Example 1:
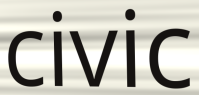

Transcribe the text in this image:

civic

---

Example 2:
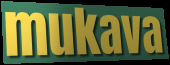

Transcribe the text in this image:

mukava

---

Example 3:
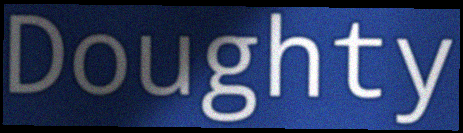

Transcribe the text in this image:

Doughty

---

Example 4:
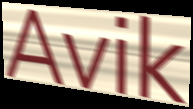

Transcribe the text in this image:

Avik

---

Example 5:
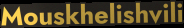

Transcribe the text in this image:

Mouskhelishvili